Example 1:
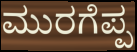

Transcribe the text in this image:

ಮುರಗೆಪ್ಪ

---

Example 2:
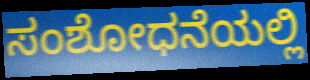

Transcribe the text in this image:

ಸಂಶೋಧನೆಯಲ್ಲಿ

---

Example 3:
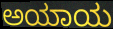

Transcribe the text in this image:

ಅಯಾಯ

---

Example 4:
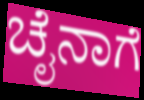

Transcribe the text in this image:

ಚೈನಾಗೆ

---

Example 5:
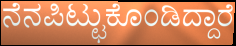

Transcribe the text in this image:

ನೆನಪಿಟ್ಟುಕೊಂಡಿದ್ದಾರೆ